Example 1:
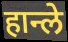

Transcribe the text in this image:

हान्ले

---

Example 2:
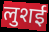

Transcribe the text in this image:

लुशई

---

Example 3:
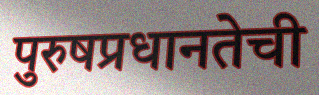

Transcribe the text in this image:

पुरुषप्रधानतेची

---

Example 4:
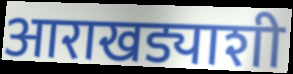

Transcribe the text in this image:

आराखड्याशी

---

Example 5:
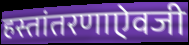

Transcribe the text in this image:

हस्तांतरणाऐवजी